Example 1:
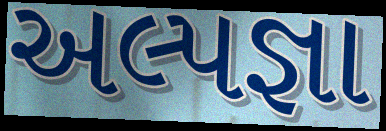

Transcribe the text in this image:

અલ્પજ્ઞા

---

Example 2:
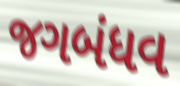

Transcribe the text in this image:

જગબંધવ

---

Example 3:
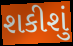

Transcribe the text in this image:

શકીશું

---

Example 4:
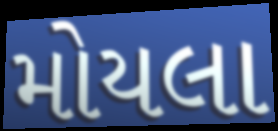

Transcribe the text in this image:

મોયલા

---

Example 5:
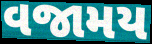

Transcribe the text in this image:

વજામય